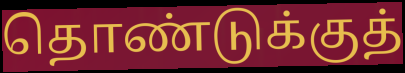
தொண்டுக்குத்